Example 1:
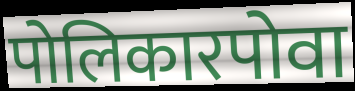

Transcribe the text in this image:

पोलिकारपोवा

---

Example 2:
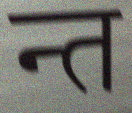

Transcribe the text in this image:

न्त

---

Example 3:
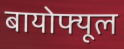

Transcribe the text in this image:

बायोफ्यूल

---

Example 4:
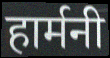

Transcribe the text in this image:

हार्मनी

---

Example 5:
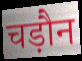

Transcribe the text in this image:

चड़ौन